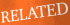
RELATED